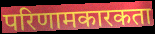
परिणामकारकता